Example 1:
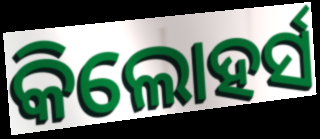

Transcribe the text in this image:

କିଲୋହର୍ସ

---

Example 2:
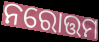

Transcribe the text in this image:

ନରୋତ୍ତମ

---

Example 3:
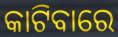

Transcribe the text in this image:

କାଟିବାରେ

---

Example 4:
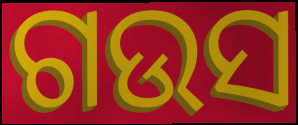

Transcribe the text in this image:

ଗଉସ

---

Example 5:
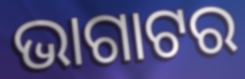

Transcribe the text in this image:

ଭାଗାଟର